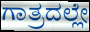
ಗಾತ್ರದಲ್ಲೇ